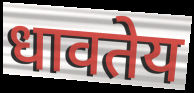
धावतेय